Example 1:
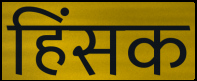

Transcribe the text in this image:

हिंसक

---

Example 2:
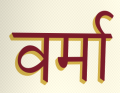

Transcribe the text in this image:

वर्मा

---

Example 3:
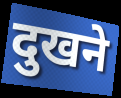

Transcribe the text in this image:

दुखने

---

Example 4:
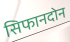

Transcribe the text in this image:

सिफानदोन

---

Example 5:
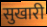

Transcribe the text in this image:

सुखारी